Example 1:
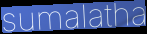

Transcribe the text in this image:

sumalatha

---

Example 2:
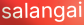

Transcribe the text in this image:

salangai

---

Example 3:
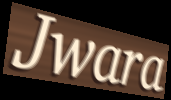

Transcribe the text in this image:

Jwara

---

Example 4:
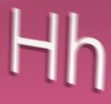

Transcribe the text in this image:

Hh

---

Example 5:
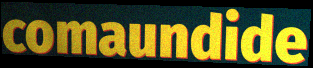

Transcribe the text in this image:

comaundide